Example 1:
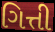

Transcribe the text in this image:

ગિત્તી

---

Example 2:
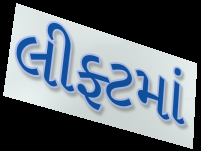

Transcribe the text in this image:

લીફ્ટમાં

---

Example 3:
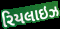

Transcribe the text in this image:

રિયલાઇઝ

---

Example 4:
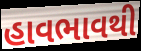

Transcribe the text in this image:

હાવભાવથી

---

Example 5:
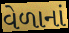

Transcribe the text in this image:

વેળાનાં